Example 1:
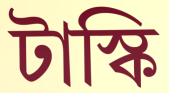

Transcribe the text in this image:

টাস্কি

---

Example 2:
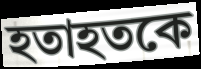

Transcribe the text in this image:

হতাহতকে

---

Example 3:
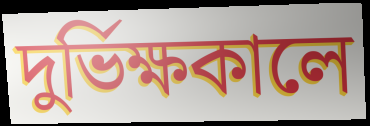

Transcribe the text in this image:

দুর্ভিক্ষকালে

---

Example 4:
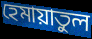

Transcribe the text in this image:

হেমায়াতুল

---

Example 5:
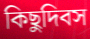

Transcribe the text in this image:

কিছুদিবস